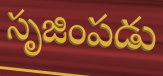
సృజింపడు